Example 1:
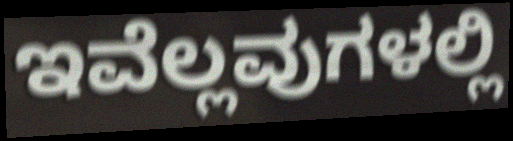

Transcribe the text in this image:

ಇವೆಲ್ಲವುಗಳಲ್ಲಿ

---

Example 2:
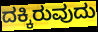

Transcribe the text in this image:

ದಕ್ಕಿರುವುದು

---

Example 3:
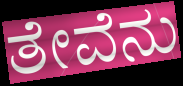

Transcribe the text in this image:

ತೇವೆನು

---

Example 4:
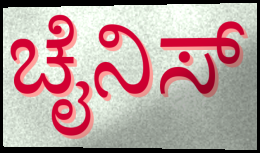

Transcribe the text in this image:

ಚೈನಿಸ್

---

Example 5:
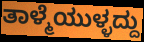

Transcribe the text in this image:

ತಾಳ್ಮೆಯುಳ್ಳದ್ದು